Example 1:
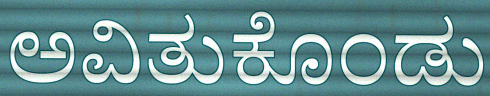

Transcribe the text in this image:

ಅವಿತುಕೊಂಡು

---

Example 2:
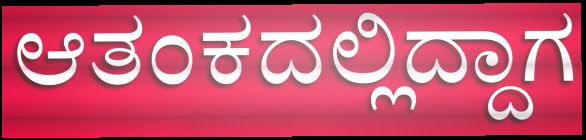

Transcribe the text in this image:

ಆತಂಕದಲ್ಲಿದ್ದಾಗ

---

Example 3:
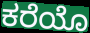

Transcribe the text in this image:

ಕರೆಯೊ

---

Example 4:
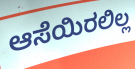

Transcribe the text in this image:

ಆಸೆಯಿರಲಿಲ್ಲ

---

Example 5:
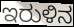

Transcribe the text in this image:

ಇರುಳಿನ